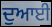
ਦੁਆਈ